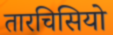
तारचिसियो